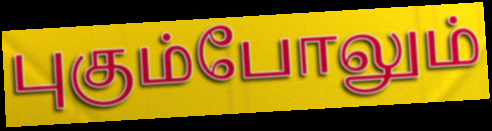
புகும்போலும்